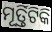
ମୂର୍ତ୍ତିଟିକି